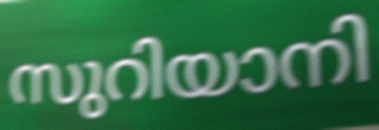
സുറിയാനി